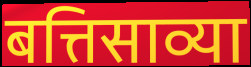
बत्तिसाव्या